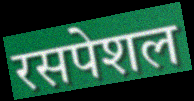
रसपेशल